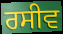
ਰਸੀਵ